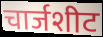
चार्जशीट